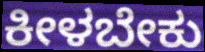
ಕೀಳಬೇಕು